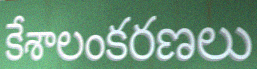
కేశాలంకరణలు